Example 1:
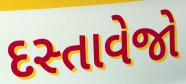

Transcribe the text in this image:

દસ્તાવેજો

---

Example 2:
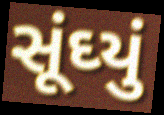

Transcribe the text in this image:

સૂંઘ્યું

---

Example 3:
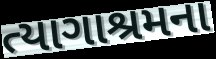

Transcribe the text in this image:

ત્યાગાશ્રમના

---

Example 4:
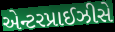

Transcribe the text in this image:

એન્ટરપ્રાઈઝીસે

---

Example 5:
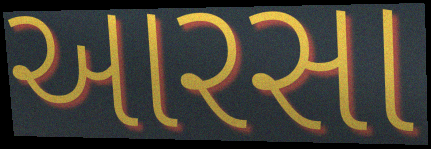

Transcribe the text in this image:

આરસા